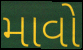
માવો